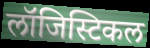
लॉजिस्टिकल